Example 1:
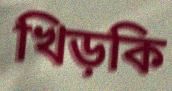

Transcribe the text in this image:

খিড়কি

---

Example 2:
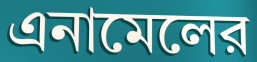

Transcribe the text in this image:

এনামেলের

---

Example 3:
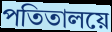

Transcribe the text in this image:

পতিতালয়ে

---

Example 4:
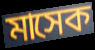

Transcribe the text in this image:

মাসেক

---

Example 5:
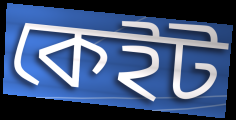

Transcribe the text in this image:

কেইট